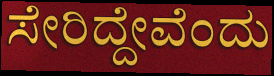
ಸೇರಿದ್ದೇವೆಂದು